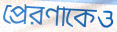
প্রেরণাকেও